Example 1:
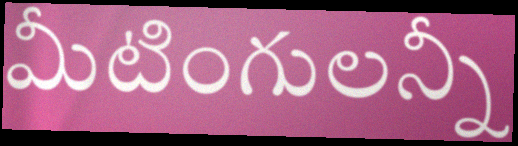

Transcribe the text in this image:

మీటింగులన్నీ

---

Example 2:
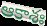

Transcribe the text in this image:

ఆకాశః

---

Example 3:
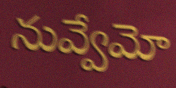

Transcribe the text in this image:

నువ్వేమో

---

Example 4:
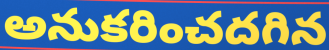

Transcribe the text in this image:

అనుకరించదగిన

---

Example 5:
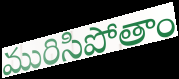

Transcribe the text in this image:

మురిసిపోతాం